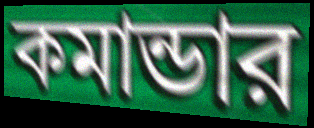
কমান্ডার